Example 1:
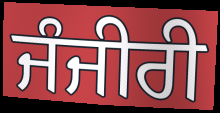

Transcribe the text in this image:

ਜੰਜੀਰੀ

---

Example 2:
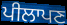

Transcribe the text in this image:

ਪੀਲਾਪਣ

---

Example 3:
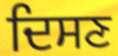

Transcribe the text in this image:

ਦਿਸਣ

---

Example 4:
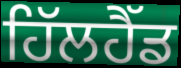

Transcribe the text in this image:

ਹਿੱਲਹੈੱਡ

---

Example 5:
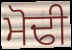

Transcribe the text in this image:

ਮੋਢੀ